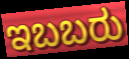
ಇಬಬರು